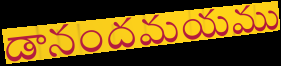
డానందమయము